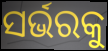
ସର୍ଭରକୁ